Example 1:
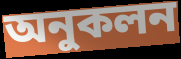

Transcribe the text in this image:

অনুকলন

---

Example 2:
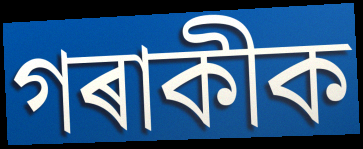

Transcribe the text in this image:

গৰাকীক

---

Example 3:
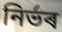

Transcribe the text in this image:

নিৰ্ভৰ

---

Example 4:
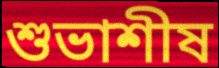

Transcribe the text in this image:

শুভাশীষ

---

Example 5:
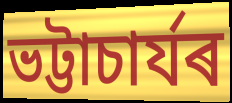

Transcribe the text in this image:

ভট্টাচাৰ্যৰ